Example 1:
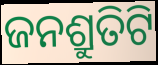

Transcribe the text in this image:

ଜନଶ୍ରୁତିଟି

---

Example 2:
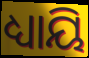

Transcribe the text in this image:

ଧ୍ୟାୟି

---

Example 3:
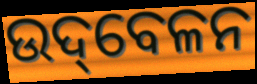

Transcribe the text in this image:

ଉଦ୍‌ବେଳନ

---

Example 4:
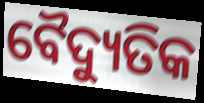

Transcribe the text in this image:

ବୈଦ୍ୟୁତିକ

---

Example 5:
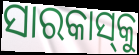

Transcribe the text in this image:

ସାରକାସ୍‌କୁ